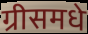
ग्रीसमधे